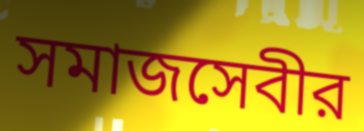
সমাজসেবীর